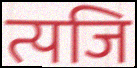
त्यजि